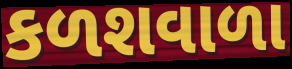
કળશવાળા